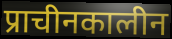
प्राचीनकालीन